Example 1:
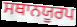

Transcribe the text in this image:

ਸਥਾਨਯੂਰਪ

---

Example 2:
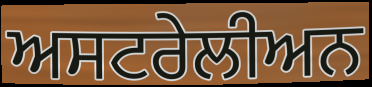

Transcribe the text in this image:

ਅਸਟਰੇਲੀਅਨ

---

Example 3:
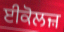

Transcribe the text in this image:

ਈਕੋਲਜ਼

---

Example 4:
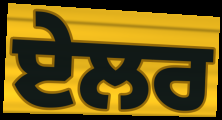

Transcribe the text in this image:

ਏਲਰ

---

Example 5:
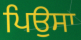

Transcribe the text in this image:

ਪਿਉਸਾ